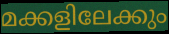
മക്കളിലേക്കും